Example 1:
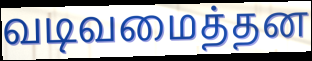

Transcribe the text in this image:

வடிவமைத்தன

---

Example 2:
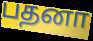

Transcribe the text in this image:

பதனா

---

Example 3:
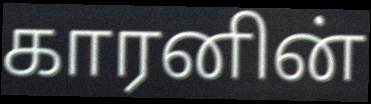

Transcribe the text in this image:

காரனின்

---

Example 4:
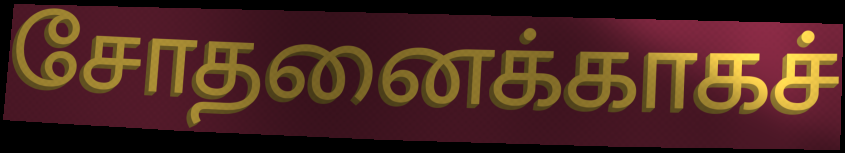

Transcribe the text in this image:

சோதனைக்காகச்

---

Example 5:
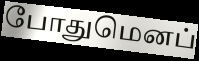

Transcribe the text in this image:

போதுமெனப்